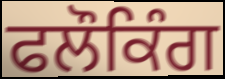
ਫਲੌਕਿੰਗ